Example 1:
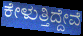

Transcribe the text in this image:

ಕೇಳುತ್ತಿದ್ದೇವೆ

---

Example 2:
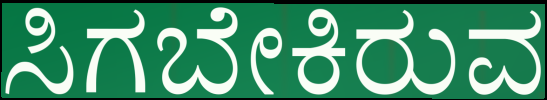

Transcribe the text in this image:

ಸಿಗಬೇಕಿರುವ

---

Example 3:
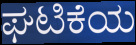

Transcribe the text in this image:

ಘಟಿಕೆಯ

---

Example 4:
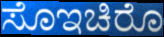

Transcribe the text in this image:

ಸೊಇಚಿರೊ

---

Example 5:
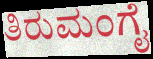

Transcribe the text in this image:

ತಿರುಮಂಗೈ